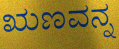
ಋಣವನ್ನ